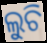
ଲୁଚି